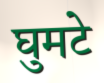
घुमटे